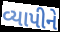
વ્યાપીને